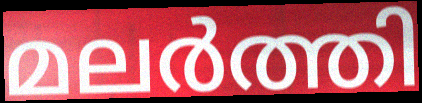
മലർത്തി